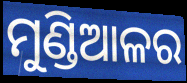
ମୁଣ୍ଡିଆଳର